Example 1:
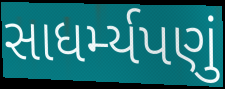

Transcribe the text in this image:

સાધર્મ્યપણું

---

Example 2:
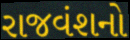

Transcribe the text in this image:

રાજવંશનો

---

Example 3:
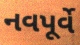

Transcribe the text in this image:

નવપૂર્વે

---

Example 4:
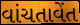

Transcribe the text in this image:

વાંચતાવેંત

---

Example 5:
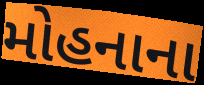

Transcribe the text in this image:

મોહનાના